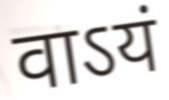
वाऽयं